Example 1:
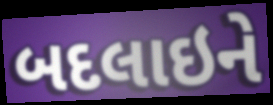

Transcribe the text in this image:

બદલાઇને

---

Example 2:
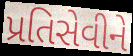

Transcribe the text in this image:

પ્રતિસેવીને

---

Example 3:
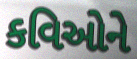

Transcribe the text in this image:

કવિઓને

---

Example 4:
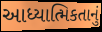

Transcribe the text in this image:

આધ્યાત્મિકતાનું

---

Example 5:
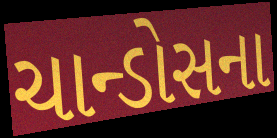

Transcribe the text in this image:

ચાન્ડોસના